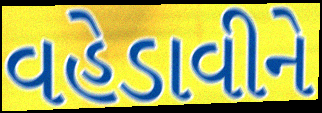
વહેડાવીને